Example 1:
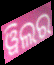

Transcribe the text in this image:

ୱିଲର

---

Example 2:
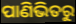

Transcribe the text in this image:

ପାଣିଭିତରୁ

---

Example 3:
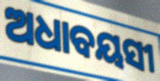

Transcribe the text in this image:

ଅଧାବୟସୀ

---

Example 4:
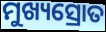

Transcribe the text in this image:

ମୁଖ୍ୟସ୍ରୋତ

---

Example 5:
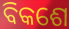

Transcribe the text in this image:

ବିକଶେ